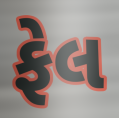
ફેલ